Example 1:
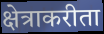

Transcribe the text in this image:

क्षेत्राकरीता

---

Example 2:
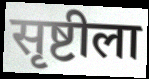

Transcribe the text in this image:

सृष्टीला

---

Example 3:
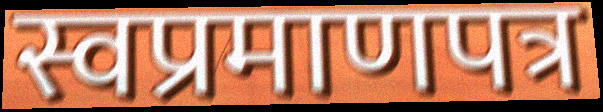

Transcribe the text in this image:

स्वप्रमाणपत्र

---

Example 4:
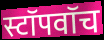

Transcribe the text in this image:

स्टॉपवॉच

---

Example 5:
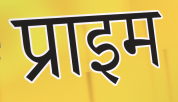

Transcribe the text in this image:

प्राइम